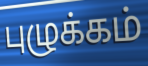
புழுக்கம்